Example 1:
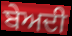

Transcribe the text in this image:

ਬੇਅਦੀ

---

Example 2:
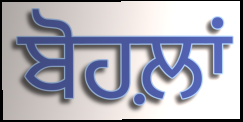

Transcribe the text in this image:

ਬੋਹਲ਼ਾਂ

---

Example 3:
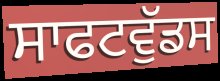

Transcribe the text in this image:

ਸਾਫਟਵੁੱਡਸ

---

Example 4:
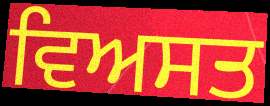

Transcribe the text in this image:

ਵਿਅਸਤ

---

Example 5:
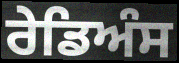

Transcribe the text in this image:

ਰੇਡਿਅੰਸ